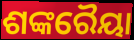
ଶଙ୍କରୈୟା